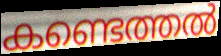
കണ്ടെത്തൽ